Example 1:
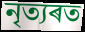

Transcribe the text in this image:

নৃত্যৰত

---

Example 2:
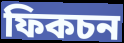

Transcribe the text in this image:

ফিকচন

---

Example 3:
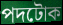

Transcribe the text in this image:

পদটোক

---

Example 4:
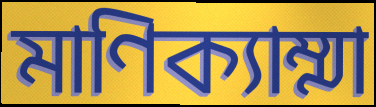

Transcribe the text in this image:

মাণিক্যাম্মা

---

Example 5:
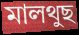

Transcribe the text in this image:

মালথুছ